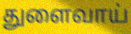
துளைவாய்